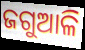
ଜଗୁଆଳି